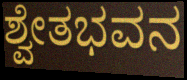
ಶ್ವೇತಭವನ